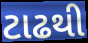
ટાઢથી